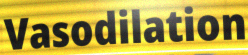
Vasodilation